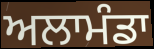
ਅਲਾਮੰਡਾ